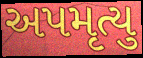
અપમૃત્યુ